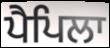
ਪੈਪਿਲਾ